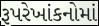
રૂપરેખાંકનોમાં